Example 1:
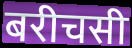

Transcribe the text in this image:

बरीचसी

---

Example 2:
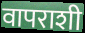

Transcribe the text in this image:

वापराशी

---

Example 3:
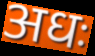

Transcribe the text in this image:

अधः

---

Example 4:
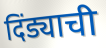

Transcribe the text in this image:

दिंड्याची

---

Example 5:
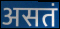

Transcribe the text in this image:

असतं